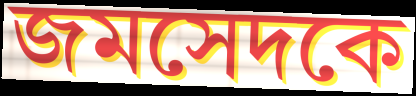
জমসেদকে